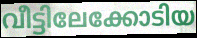
വീട്ടിലേക്കോടിയ